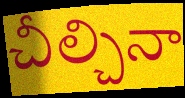
చీల్చినా